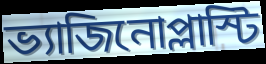
ভ্যাজিনোপ্লাস্টি